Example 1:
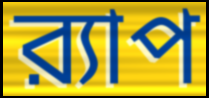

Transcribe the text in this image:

র‍্যাপ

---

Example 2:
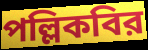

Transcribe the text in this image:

পল্লিকবির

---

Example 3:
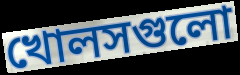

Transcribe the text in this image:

খোলসগুলো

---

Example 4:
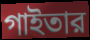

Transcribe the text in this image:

গাইতার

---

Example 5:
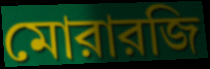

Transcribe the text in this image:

মোরারজি